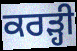
ਕਰੜ੍ਹੀ